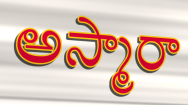
అస్మారా